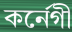
কর্নেগী